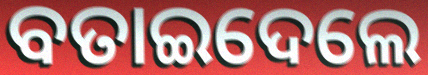
ବତାଇଦେଲେ